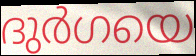
ദുർഗയെ